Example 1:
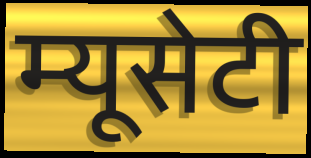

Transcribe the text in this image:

म्यूसेटी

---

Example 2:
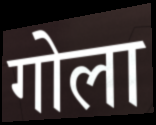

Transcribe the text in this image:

गोला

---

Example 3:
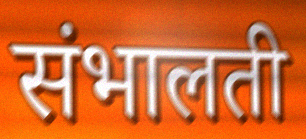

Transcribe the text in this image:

संभालती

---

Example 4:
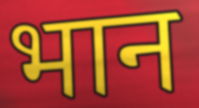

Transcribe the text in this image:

भान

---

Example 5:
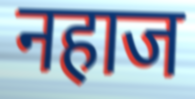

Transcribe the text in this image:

नहाज